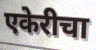
एकेरीचा